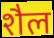
शैल